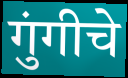
गुंगीचे